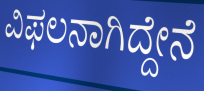
ವಿಫಲನಾಗಿದ್ದೇನೆ